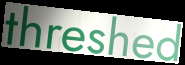
threshed